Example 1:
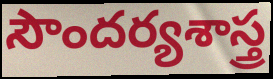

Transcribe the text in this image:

సౌందర్యశాస్త్ర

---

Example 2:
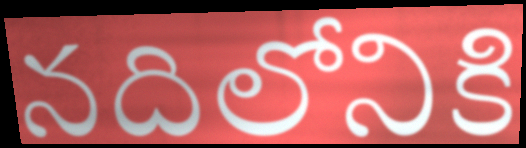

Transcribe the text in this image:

నదిలోనికి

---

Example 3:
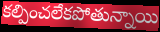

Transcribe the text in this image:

కల్పించలేకపోతున్నాయి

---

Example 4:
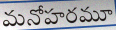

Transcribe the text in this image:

మనోహరమూ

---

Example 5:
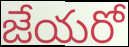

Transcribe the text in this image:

జేయరో